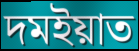
দমইয়াত